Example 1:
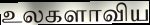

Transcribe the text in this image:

உலகளாவிய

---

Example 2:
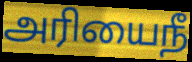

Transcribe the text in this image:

அரியைநீ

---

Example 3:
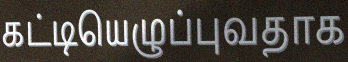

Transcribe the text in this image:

கட்டியெழுப்புவதாக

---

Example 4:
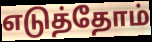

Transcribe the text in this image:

எடுத்தோம்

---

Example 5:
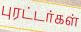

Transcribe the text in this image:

புரட்டர்கள்